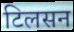
टिलसन